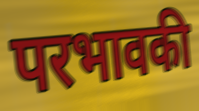
परभावकी